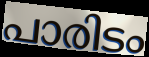
പാരിടം